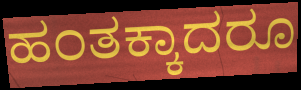
ಹಂತಕ್ಕಾದರೂ